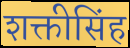
शक्तीसिंह